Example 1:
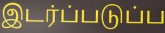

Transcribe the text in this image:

இடர்ப்படுப்ப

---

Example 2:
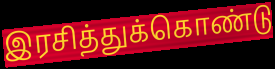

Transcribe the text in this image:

இரசித்துக்கொண்டு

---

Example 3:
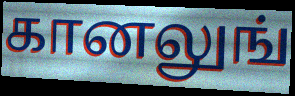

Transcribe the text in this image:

கானலுங்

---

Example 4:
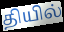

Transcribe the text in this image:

தியில்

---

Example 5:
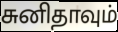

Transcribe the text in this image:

சுனிதாவும்